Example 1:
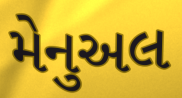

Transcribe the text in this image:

મેનુઅલ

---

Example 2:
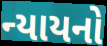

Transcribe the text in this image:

ન્યાયનો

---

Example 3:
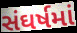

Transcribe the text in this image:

સંઘર્ષમાં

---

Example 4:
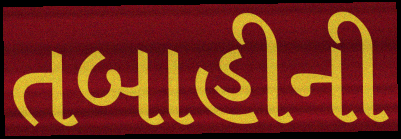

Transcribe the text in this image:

તબાહીની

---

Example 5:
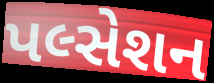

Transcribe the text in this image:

પલ્સેશન